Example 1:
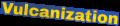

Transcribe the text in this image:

Vulcanization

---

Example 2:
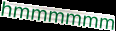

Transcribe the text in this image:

hmmmmmm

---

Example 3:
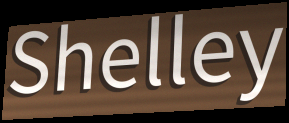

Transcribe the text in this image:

Shelley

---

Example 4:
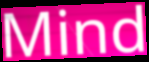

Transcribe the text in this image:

Mind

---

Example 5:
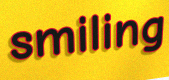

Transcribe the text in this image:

smiling